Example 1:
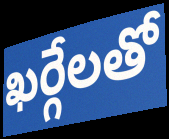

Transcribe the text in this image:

ఖర్గేలతో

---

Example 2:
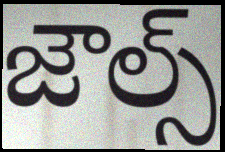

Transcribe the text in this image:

జౌల్స్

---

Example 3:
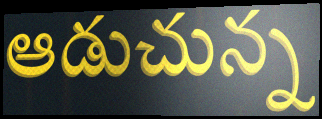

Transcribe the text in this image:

ఆడుచున్న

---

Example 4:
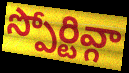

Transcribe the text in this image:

స్పోర్టివ్గా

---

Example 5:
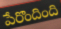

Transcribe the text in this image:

పేరొందింది